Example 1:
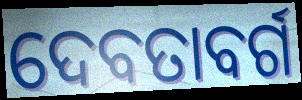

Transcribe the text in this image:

ଦେବତାବର୍ଗ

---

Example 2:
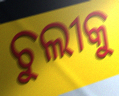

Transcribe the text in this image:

ଚୁଲୀକୁ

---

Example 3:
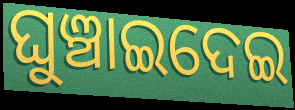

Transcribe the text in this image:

ଘୁଞ୍ଚାଇଦେଇ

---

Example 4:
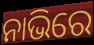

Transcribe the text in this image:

ନାଭିରେ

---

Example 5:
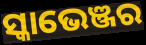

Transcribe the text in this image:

ସ୍କାଭେଞ୍ଜର